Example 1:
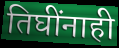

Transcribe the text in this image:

तिघींनाही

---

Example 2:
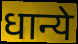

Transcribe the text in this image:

धान्ये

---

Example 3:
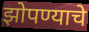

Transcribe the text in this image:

झोपण्याचे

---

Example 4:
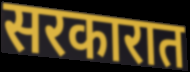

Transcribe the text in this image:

सरकारात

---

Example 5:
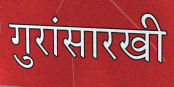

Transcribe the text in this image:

गुरांसारखी